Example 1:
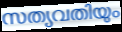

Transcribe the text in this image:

സത്യവതിയും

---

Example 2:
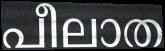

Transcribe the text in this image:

പീലാത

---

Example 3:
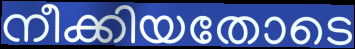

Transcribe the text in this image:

നീക്കിയതോടെ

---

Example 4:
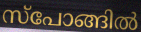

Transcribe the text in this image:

സ്പോങ്ങിൽ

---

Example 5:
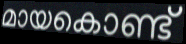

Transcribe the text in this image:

മായകൊണ്ട്